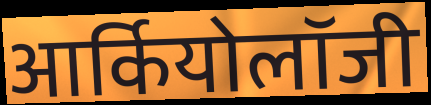
आर्कियोलॉजी